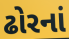
ઢોરનાં